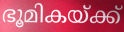
ഭൂമികയ്ക്ക്